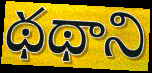
థథాని